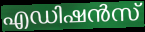
എഡിഷൻസ്